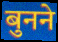
बुनने